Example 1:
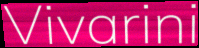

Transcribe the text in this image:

Vivarini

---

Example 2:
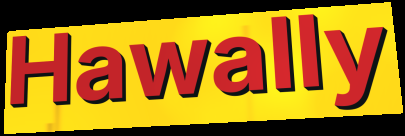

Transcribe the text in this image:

Hawally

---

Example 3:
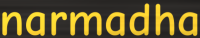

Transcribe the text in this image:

narmadha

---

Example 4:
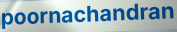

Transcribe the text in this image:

poornachandran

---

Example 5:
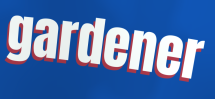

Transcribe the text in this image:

gardener